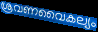
ശ്രവണവൈകല്യം